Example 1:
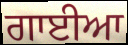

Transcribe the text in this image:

ਗਾਈਆ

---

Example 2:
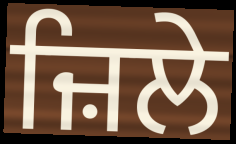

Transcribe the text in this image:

ਜ਼ਿਲੇ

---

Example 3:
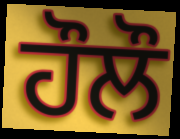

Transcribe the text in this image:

ਹੌਲੌ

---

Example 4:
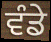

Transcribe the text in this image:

ਵੰਡੇ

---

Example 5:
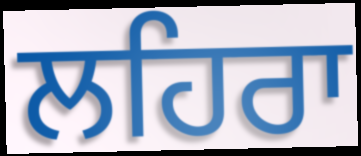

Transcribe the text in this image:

ਲਹਿਰਾ